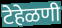
टेहेळणी